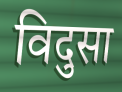
विदुसा